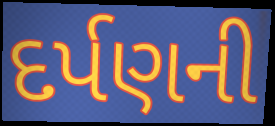
દર્પણની